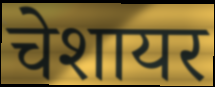
चेशायर